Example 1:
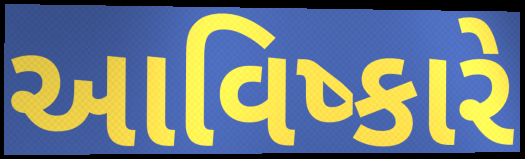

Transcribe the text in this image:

આવિષ્કારે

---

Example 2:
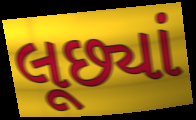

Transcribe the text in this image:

લૂછ્યાં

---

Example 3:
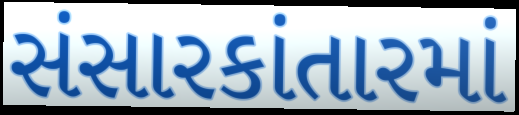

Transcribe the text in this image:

સંસારકાંતારમાં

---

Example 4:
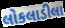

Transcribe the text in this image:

લોકલાડીલા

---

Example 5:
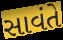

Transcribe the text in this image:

સાવંતે